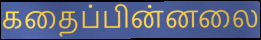
கதைப்பின்னலை